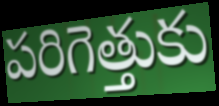
పరిగెత్తుకు